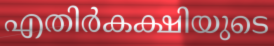
എതിർകക്ഷിയുടെ